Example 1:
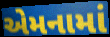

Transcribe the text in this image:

એમનામાં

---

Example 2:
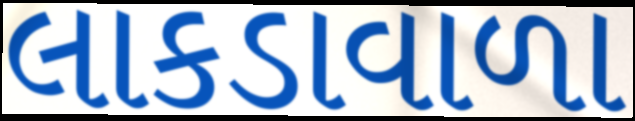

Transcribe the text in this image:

લાકડાવાળા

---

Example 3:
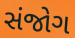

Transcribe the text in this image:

સંજોગ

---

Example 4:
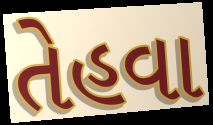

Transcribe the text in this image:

તેહવા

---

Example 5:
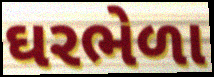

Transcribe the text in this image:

ઘરભેળા